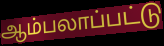
ஆம்பலாப்பட்டு